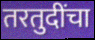
तरतुदींचा